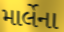
માર્લેના